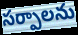
సర్పాలను